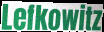
Lefkowitz